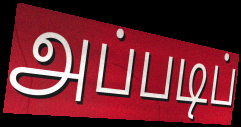
அப்படிப்